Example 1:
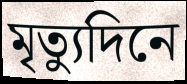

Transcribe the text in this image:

মৃত্যুদিনে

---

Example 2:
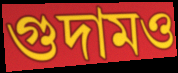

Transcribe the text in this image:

গুদামও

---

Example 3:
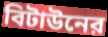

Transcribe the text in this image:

বিটাউনের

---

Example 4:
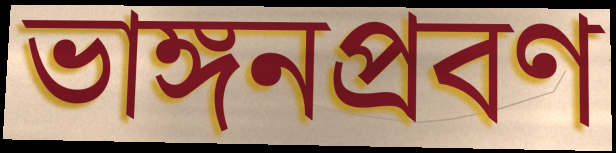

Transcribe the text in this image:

ভাঙ্গনপ্রবণ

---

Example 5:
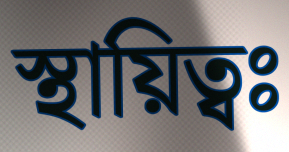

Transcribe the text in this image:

স্থায়িত্বঃ